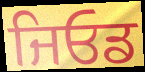
ਜਿਓਡ